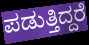
ಪಡುತ್ತಿದ್ದರೆ